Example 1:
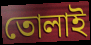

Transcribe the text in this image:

তোলাই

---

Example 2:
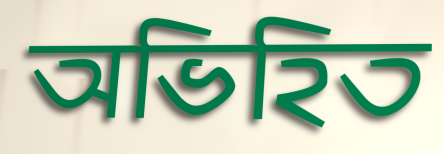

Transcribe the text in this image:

অভিহিত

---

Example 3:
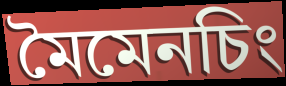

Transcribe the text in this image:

মৈমেনচিং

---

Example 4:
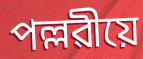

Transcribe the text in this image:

পল্লৱীয়ে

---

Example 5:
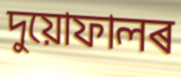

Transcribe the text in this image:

দুয়োফালৰ